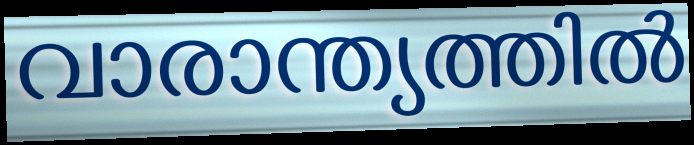
വാരാന്ത്യത്തിൽ